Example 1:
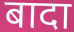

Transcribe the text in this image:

बादा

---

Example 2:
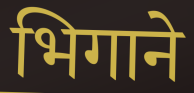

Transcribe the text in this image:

भिगाने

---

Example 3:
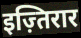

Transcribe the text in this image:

इज़्तिरार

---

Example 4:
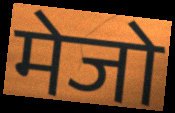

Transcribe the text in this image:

मेजो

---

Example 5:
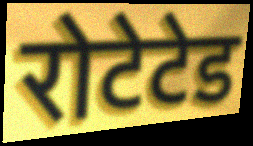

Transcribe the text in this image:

रोटेटेड